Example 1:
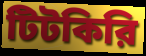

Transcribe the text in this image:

টিটকিরি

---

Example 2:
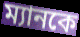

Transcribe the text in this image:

ম্যানকে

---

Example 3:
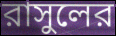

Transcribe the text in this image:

রাসুলের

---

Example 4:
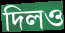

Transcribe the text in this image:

দিলও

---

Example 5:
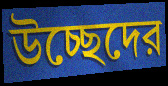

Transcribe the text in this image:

উচ্ছেদের